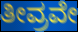
ತೀವ್ರವೇ